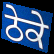
ਠੇਕੇ